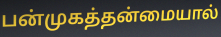
பன்முகத்தன்மையால்